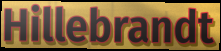
Hillebrandt